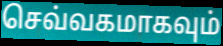
செவ்வகமாகவும்